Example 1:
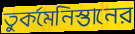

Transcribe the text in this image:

তুর্কমেনিস্তানের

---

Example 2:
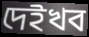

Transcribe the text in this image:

দেইখব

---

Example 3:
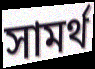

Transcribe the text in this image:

সামর্থ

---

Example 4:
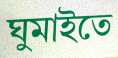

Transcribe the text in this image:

ঘুমাইতে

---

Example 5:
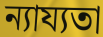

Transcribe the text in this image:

ন্যায্যতা